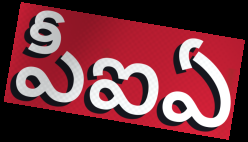
పీఐఏ